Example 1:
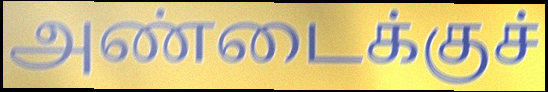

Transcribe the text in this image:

அண்டைக்குச்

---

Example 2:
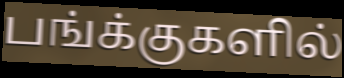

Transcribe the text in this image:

பங்க்குகளில்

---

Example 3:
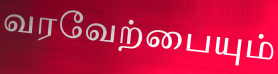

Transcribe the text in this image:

வரவேற்பையும்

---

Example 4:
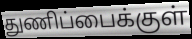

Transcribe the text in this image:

துணிப்பைக்குள்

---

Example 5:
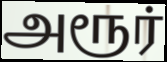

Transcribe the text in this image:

அரூர்